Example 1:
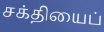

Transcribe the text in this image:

சக்தியைப்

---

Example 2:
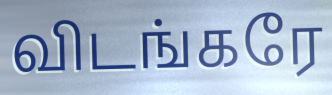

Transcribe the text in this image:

விடங்கரே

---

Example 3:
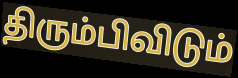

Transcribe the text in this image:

திரும்பிவிடும்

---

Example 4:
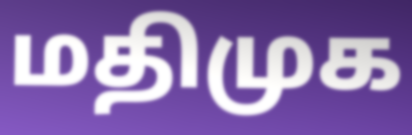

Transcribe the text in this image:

மதிமுக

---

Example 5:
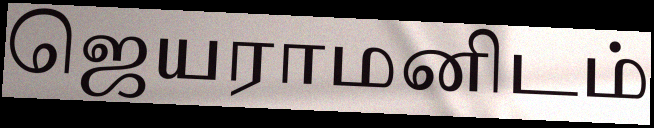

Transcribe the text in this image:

ஜெயராமனிடம்